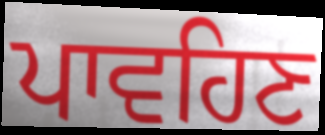
ਪਾਵਹਿਣ